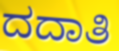
ದದಾತಿ